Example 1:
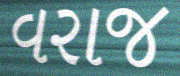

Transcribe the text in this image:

વરાજ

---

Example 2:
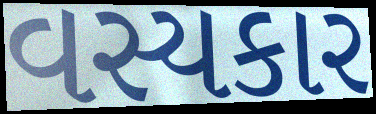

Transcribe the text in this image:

વસ્યકાર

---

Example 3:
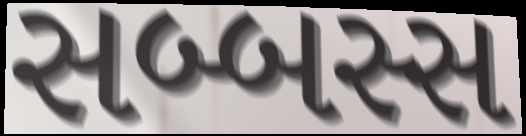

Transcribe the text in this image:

સબ્બસ્સ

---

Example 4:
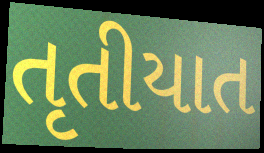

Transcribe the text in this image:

તૃતીયાત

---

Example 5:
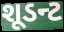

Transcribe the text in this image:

શૂડન્ટ